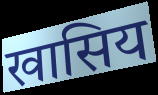
खासिय